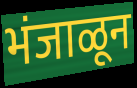
भंजाळून